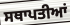
ਸਥਾਪਤੀਆਂ